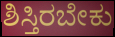
ಶಿಸ್ತಿರಬೇಕು